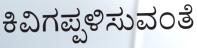
ಕಿವಿಗಪ್ಪಳಿಸುವಂತೆ